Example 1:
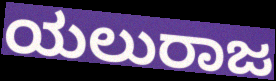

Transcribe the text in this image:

ಯಲುರಾಜ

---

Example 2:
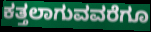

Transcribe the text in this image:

ಕತ್ತಲಾಗುವವರೆಗೂ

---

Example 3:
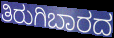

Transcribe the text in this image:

ತಿರುಗಿಬಾರದ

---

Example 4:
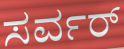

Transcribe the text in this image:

ಸರ್ವರ್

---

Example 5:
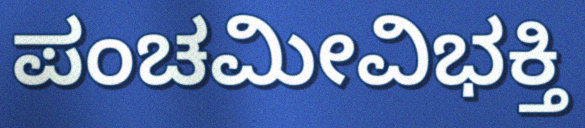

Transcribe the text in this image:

ಪಂಚಮೀವಿಭಕ್ತಿ